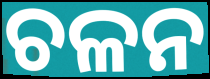
ଚଳନ